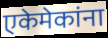
एकेमेकांना